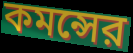
কমন্সের